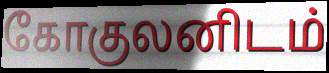
கோகுலனிடம்